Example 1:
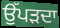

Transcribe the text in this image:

ਉੱਪੜਦਾ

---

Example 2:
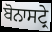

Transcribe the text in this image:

ਬੋਨਾਸਟ੍ਰੇ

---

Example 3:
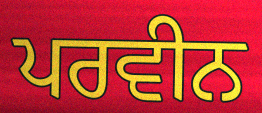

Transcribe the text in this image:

ਪਰਵੀਨ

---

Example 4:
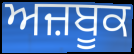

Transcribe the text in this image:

ਅਜ਼ਬੂਕ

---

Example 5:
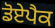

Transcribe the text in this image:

ਡੋਏਪੈਕ